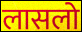
लासलो